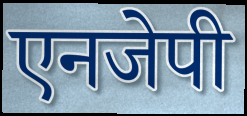
एनजेपी